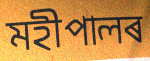
মহীপালৰ